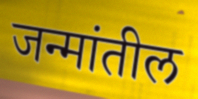
जन्मांतील